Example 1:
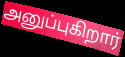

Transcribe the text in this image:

அனுப்புகிறார்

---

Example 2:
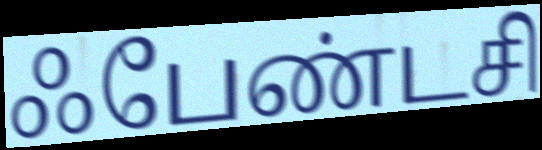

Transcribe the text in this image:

ஃபேண்டசி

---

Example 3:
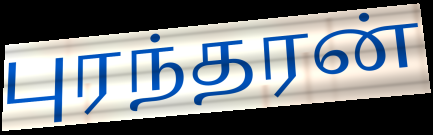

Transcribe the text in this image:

புரந்தரன்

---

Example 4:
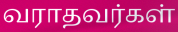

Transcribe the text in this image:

வராதவர்கள்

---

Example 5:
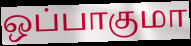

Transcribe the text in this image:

ஒப்பாகுமா